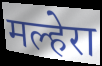
मल्हेरा